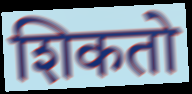
शिकतो